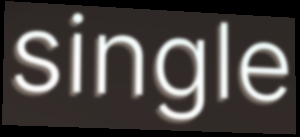
single